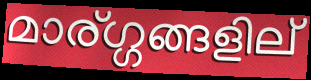
മാര്ഗ്ഗങ്ങളില്